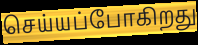
செய்யப்போகிறது